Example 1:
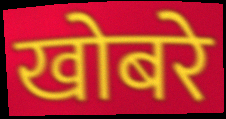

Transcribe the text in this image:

खोबरे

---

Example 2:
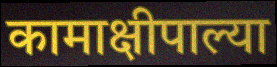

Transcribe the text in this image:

कामाक्षीपाल्या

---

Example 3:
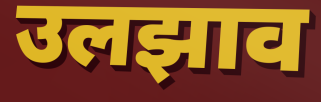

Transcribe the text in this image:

उलझाव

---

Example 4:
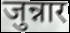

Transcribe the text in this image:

जुन्नार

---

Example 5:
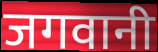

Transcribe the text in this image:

जगवानी